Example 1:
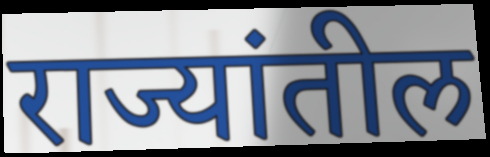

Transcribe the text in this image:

राज्यांतील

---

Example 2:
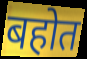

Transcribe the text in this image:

बहोत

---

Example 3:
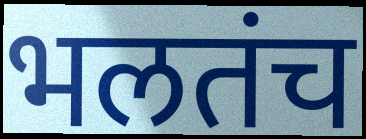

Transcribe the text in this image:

भलतंच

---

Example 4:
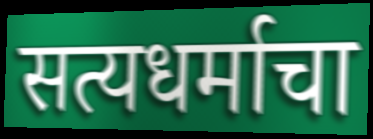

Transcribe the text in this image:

सत्यधर्माचा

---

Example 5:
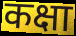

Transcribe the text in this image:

कक्षा